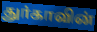
துர்காவின்